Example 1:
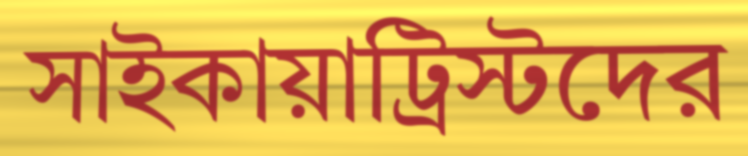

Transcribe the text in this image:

সাইকায়াট্রিস্টদের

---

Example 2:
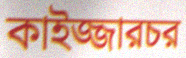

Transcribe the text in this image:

কাইজ্জারচর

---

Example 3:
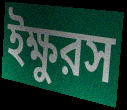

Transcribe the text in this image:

ইক্ষুরস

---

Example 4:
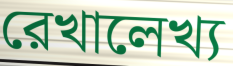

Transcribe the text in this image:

রেখালেখ্য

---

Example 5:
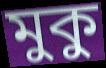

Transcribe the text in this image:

মুকু